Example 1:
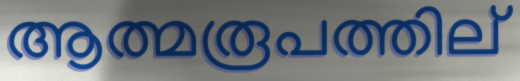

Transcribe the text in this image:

ആത്മരൂപത്തില്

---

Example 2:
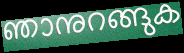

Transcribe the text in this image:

ഞാനുറങ്ങുക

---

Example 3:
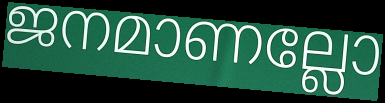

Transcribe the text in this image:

ജനമാണല്ലോ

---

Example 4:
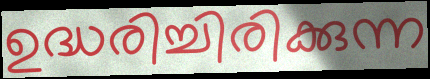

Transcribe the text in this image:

ഉദ്ധരിച്ചിരിക്കുന്ന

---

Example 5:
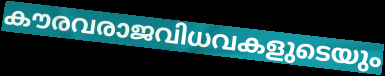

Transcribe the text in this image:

കൗരവരാജവിധവകളുടെയും